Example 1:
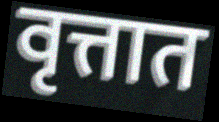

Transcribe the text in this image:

वृत्तात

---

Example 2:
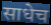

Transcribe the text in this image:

साधेच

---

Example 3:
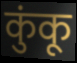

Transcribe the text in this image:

कुंकू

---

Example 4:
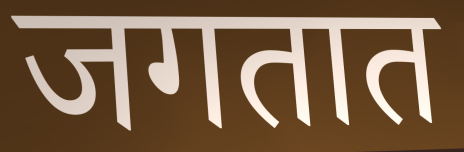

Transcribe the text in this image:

जगतात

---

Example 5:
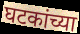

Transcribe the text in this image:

घटकांच्या